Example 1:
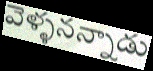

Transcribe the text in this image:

వెళ్ళనన్నాడు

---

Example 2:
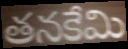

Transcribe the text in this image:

తనకేమి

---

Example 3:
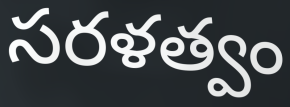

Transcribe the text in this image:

సరళత్వం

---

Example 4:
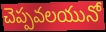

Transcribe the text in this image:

చెప్పవలయునో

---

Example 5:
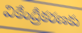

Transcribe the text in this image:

వికేంద్రీకరణకు